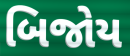
બિજોય